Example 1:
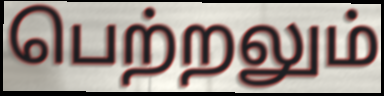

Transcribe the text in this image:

பெற்றலும்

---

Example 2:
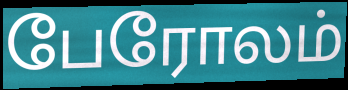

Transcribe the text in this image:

பேரோலம்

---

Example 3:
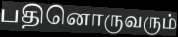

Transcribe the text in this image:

பதினொருவரும்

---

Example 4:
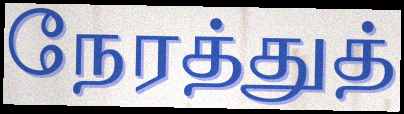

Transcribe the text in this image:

நேரத்துத்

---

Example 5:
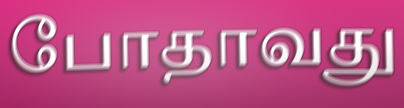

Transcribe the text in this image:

போதாவது